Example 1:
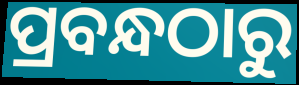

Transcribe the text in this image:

ପ୍ରବନ୍ଧଠାରୁ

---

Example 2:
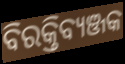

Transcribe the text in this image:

ବିରକ୍ତିବ୍ୟଞ୍ଜକ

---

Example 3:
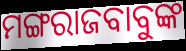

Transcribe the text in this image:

ମଙ୍ଗରାଜବାବୁଙ୍କ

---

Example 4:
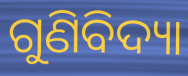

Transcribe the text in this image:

ଗୁଣିବିଦ୍ୟା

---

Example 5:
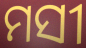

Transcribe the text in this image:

ମସୀ